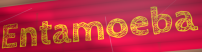
Entamoeba